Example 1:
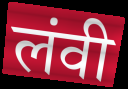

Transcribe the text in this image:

लंवी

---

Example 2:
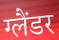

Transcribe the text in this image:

ग्लैंडर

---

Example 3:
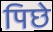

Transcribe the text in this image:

पिछे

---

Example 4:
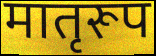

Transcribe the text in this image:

मातृरूप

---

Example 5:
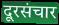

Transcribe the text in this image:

दूरसंचार